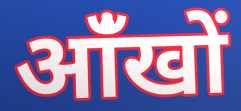
आंँखों